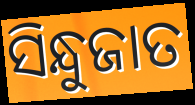
ସିନ୍ଧୁଜାତ